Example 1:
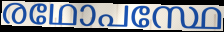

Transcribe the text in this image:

രഥോപസ്ഥേ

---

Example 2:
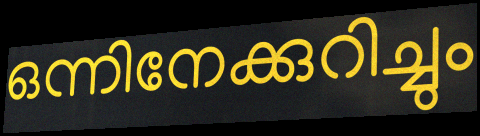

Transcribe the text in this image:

ഒന്നിനേക്കുറിച്ചും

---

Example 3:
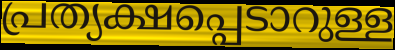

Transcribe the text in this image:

പ്രത്യക്ഷപ്പെടാറുള്ള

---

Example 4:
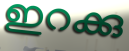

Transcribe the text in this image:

ഇറക്കു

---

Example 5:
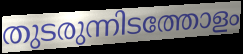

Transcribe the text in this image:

തുടരുന്നിടത്തോളം